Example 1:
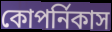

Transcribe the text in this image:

কোপর্নিকাস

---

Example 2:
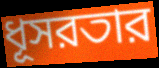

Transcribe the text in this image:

ধূসরতার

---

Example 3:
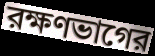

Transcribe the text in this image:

রক্ষণভাগের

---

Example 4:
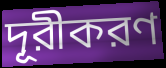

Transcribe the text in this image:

দূরীকরণ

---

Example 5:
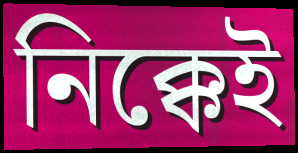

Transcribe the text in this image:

নিক্কেই